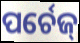
ପର୍ଚେଜ୍